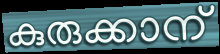
കുരുക്കാന്